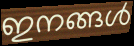
ഇനങ്ങൾ